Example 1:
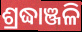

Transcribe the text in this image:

ଶ୍ରଦ୍ଧାଞ୍ଜଳି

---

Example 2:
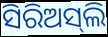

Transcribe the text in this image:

ସିରିଅସ୍‌ଲି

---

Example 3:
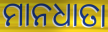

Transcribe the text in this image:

ମାନଧାତା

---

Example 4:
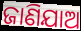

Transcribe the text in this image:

ଜାଣିଯାଅ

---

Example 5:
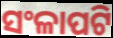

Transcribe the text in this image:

ସଂଳାପଟି